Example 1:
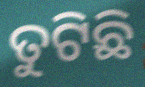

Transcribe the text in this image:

ତୁଟିଛି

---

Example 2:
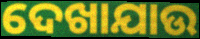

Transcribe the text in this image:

ଦେଖାଯାଉ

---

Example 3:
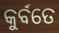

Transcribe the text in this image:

କୁର୍ବତେ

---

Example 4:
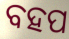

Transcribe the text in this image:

ବହପ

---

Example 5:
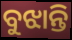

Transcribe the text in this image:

ବୁଝାନ୍ତି